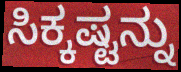
ಸಿಕ್ಕಷ್ಟನ್ನು